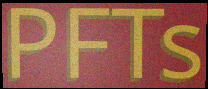
PFTs